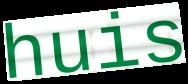
huis